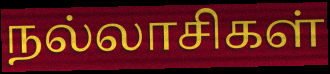
நல்லாசிகள்